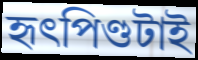
হৃৎপিণ্ডটাই